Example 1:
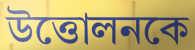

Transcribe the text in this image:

উত্তোলনকে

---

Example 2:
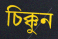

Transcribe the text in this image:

চিক্কুন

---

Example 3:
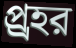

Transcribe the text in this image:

প্র্রহর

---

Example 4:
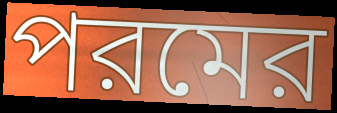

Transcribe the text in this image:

পরমের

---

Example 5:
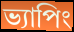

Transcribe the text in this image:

ভ্যাপিং